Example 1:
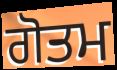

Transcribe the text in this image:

ਗੋਤਮ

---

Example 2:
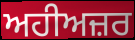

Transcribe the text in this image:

ਅਹੀਅਜ਼ਰ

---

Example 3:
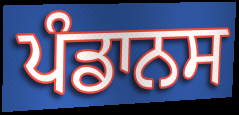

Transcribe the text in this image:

ਪੰਡਾਨਸ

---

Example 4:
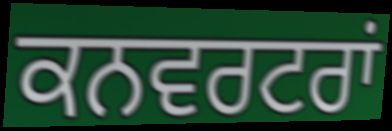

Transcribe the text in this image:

ਕਨਵਰਟਰਾਂ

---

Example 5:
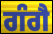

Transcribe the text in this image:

ਗੰਗੈ